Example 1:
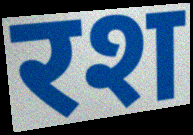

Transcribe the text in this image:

रश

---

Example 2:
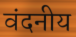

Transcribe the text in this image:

वंदनीय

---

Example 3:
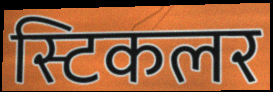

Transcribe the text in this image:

स्टिकलर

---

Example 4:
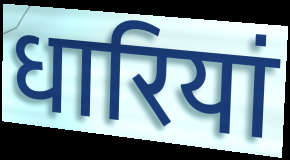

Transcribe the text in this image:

धारियां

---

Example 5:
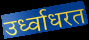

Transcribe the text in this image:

उर्ध्वाधरत